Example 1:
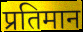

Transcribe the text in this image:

प्रतिमान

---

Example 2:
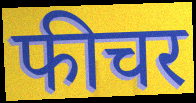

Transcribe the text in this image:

फीचर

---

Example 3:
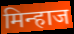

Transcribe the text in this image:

मिन्हाज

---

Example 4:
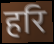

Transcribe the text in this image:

हरि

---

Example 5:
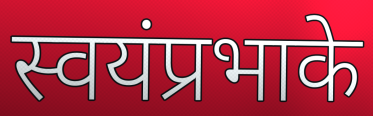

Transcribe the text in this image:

स्वयंप्रभाके